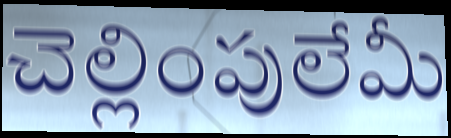
చెల్లింపులేమీ